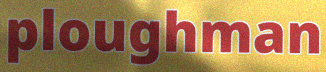
ploughman